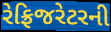
રેફ્રિજરેટરની